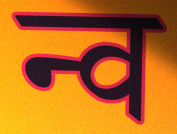
न्व